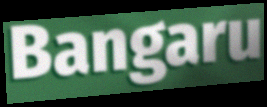
Bangaru